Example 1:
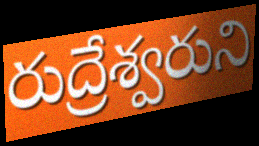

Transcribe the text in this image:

రుద్రేశ్వరుని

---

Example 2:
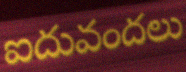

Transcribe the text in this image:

ఐదువందలు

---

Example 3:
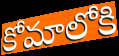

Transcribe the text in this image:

కోమాలోకి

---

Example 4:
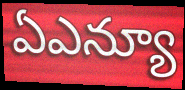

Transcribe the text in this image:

ఏఎన్యూ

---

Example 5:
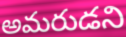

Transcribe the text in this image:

అమరుడని